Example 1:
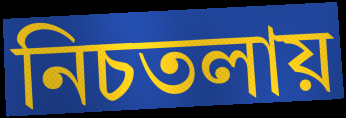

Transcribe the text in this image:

নিচতলায়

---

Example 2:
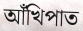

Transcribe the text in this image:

আঁখিপাত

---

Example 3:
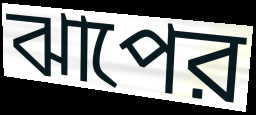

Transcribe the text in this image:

ঝাপের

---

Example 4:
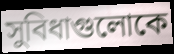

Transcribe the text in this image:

সুবিধাগুলোকে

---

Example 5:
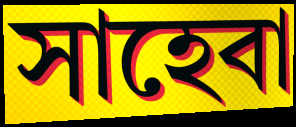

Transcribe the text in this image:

সাহেবা